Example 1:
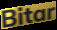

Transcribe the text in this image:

Bitar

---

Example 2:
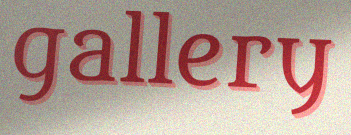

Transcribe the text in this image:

gallery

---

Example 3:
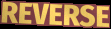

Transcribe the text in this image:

REVERSE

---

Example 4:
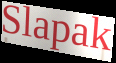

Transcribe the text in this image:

Slapak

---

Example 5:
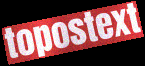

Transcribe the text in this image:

topostext